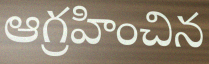
ఆగ్రహించిన